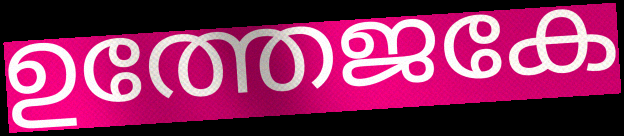
ഉത്തേജകേ